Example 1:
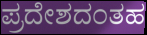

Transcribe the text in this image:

ಪ್ರದೇಶದಂತಹ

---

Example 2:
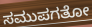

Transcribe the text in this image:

ಸಮುಪಗತೋ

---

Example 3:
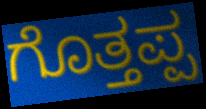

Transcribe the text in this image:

ಗೊತ್ತಪ್ಪ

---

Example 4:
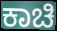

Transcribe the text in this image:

ಕಾಚಿ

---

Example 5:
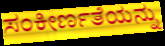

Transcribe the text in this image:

ಸಂಕೀರ್ಣತೆಯನ್ನು